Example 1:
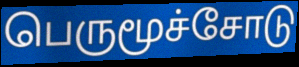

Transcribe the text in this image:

பெருமூச்சோடு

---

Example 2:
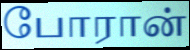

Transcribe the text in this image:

போரான்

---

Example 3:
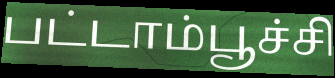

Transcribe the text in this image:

பட்டாம்பூச்சி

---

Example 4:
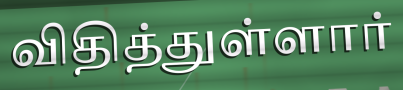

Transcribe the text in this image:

விதித்துள்ளார்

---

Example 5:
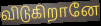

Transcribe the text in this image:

விடுகிறானே